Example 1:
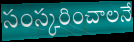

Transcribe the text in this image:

సంస్కరించాలనే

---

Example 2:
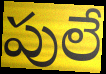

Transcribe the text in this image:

పులే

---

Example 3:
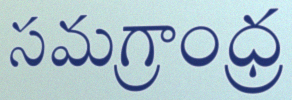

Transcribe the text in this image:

సమగ్రాంధ్ర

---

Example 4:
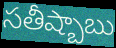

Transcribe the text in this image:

సతీష్బాబు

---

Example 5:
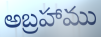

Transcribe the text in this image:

అబ్రహాము